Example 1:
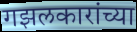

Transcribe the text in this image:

गझलकारांच्या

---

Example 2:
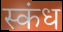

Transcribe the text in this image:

स्कंध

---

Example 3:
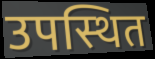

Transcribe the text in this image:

उपस्थित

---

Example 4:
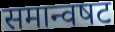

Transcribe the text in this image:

समान्वषट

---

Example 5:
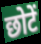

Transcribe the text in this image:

छोटें